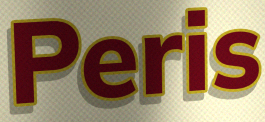
Peris